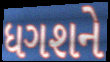
ધગશને